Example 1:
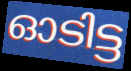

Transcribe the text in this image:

ഓടിട്ട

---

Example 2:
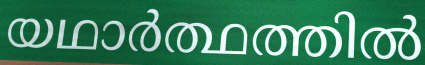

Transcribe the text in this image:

യഥാർത്ഥത്തിൽ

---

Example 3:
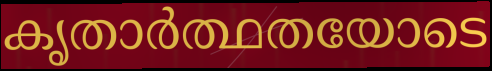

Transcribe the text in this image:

കൃതാർത്ഥതയോടെ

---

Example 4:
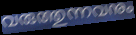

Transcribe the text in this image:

വരുത്തുന്നവനും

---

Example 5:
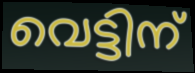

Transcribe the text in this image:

വെട്ടിന്